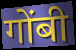
गोंबी